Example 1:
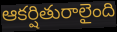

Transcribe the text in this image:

ఆకర్షితురాలైంది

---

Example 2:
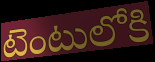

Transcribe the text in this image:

టెంటులోకి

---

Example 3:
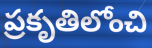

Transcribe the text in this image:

ప్రకృతిలోంచి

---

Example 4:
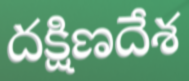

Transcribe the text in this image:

దక్షిణదేశ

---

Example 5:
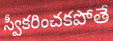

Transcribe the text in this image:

స్వీకరించకపోతే